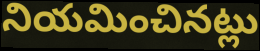
నియమించినట్లు